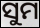
ସୁମ